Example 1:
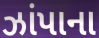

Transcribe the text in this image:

ઝાંપાના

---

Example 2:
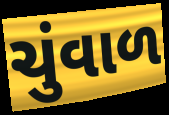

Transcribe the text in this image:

ચુંવાળ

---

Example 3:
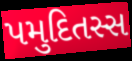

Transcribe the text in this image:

પમુદિતસ્સ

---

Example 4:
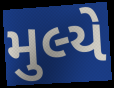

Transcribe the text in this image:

મુલ્યે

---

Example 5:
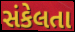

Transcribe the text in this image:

સંકેલતા